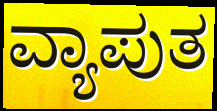
ವ್ಯಾಪುತ